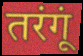
तरंगूं